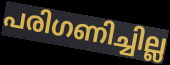
പരിഗണിച്ചില്ല